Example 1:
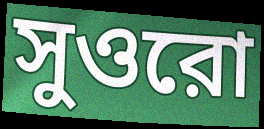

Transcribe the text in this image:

সুওরো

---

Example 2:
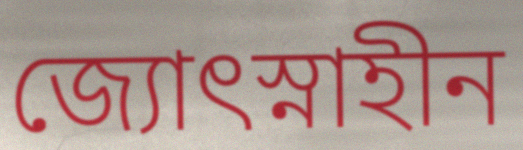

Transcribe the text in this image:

জ্যোৎস্নাহীন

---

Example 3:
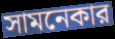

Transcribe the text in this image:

সামনেকার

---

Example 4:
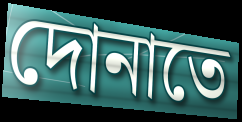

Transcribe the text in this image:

দোনাতে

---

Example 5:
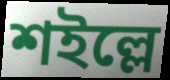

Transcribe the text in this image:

শইল্লে